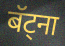
बॅट्ना